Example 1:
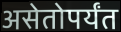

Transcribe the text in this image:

असेतोपर्यंत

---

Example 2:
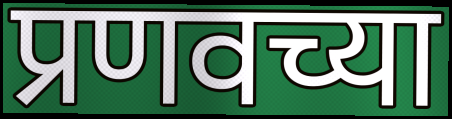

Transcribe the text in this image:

प्रणवच्या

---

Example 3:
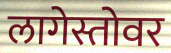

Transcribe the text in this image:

लागेस्तोवर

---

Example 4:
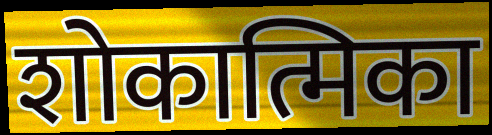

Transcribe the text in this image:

शोकात्मिका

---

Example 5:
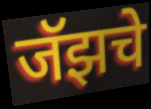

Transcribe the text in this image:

जॅझचे